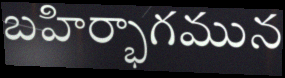
బహిర్భాగమున